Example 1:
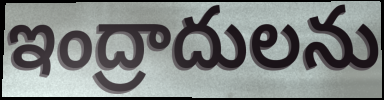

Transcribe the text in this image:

ఇంద్రాదులను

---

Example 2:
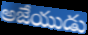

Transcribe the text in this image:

అజేయుడు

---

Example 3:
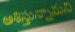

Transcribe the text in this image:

ఆశిస్తున్నామని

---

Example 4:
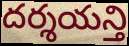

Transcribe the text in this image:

దర్శయన్తి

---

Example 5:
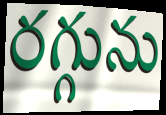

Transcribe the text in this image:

రగ్గును